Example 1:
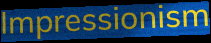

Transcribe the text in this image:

Impressionism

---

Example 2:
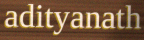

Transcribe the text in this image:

adityanath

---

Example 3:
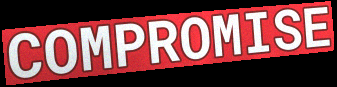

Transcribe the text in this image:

COMPROMISE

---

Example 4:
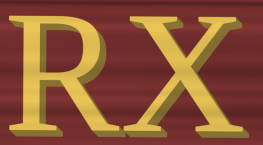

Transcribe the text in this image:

RX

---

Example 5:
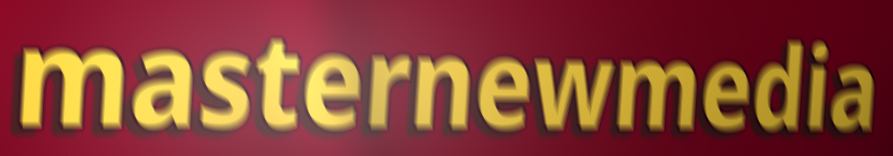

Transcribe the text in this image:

masternewmedia